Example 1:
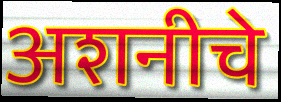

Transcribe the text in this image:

अशनीचे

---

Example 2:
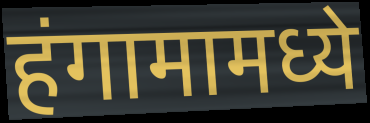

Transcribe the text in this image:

हंगामामध्ये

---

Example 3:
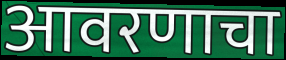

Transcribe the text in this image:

आवरणाचा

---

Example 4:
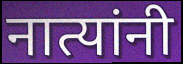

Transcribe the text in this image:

नात्यांनी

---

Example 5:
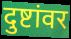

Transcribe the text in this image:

दुष्टांवर